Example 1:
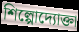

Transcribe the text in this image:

শিল্পোদ্যোক্তা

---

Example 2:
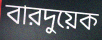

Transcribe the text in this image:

বারদুয়েক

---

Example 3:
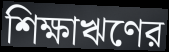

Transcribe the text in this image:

শিক্ষাঋণের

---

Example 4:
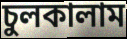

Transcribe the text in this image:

চুলকালাম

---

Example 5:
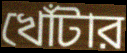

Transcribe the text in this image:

খোঁটার